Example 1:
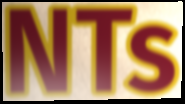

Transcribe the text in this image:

NTs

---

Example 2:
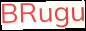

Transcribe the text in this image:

BRugu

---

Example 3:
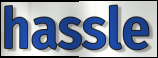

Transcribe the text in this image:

hassle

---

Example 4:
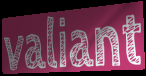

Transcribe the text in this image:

valiant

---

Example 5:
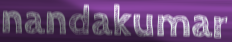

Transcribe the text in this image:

nandakumar